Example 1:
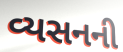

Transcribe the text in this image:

વ્યસનની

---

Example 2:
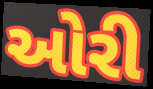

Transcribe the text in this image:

ઓરી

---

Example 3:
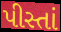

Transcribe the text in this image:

પીસ્તાં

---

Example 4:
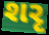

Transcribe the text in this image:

શરૃ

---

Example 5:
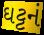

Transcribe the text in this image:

ઘટ્ટનં